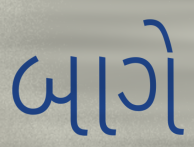
બાગે